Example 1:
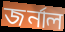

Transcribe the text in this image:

জৰ্নাল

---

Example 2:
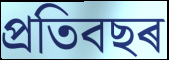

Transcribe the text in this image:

প্ৰতিবছৰ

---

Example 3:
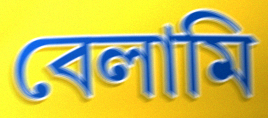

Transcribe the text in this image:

বেলামি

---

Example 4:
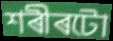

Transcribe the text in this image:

শৰীৰটো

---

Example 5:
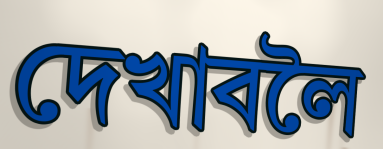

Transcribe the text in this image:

দেখাবলৈ